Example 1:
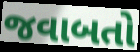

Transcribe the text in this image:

જવાબતો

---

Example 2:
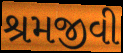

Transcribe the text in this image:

શ્રમજીવી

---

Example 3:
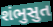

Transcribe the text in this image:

શંભુસુત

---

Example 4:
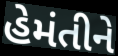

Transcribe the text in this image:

હેમંતીને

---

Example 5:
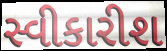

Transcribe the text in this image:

સ્વીકારીશ